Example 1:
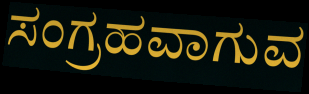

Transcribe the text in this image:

ಸಂಗ್ರಹವಾಗುವ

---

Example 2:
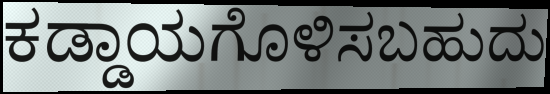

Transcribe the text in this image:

ಕಡ್ಡಾಯಗೊಳಿಸಬಹುದು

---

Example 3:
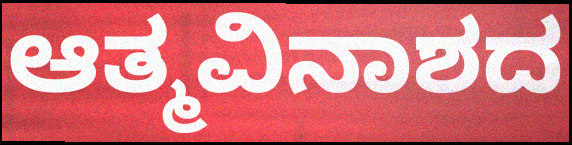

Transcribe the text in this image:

ಆತ್ಮವಿನಾಶದ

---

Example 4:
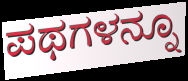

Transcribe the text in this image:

ಪಥಗಳನ್ನೂ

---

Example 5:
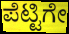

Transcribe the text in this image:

ಪೆಟ್ಟಿಗೇ